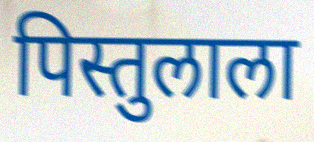
पिस्तुलाला